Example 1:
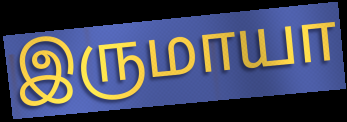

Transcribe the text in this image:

இருமாயா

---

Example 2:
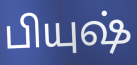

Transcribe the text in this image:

பியுஷ்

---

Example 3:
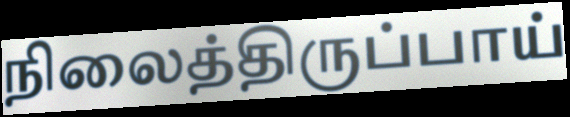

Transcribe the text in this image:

நிலைத்திருப்பாய்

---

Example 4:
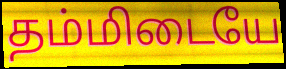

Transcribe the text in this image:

தம்மிடையே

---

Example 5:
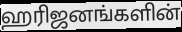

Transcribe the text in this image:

ஹரிஜனங்களின்